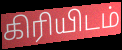
கிரியிடம்